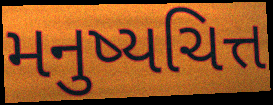
મનુષ્યચિત્ત